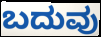
ಬದುವು